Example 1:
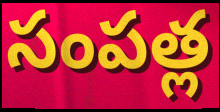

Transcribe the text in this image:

సంపత్ల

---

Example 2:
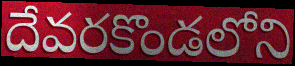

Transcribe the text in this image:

దేవరకొండలోని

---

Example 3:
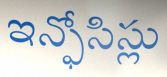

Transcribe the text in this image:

ఇన్ఫోసిస్లు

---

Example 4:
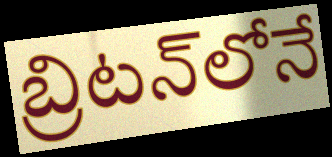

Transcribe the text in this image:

బ్రిటన్‌లోనే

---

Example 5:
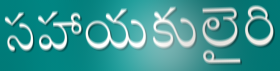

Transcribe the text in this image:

సహాయకులైరి